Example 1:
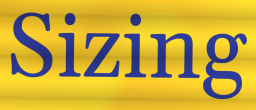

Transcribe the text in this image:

Sizing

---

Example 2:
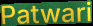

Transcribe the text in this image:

Patwari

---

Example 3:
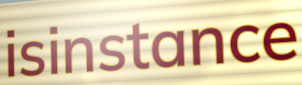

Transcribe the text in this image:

isinstance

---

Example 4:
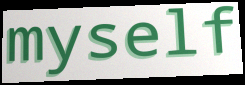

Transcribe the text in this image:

myself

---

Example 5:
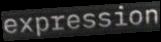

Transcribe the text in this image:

expression